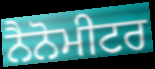
ਨੈਨੋਮੀਟਰ